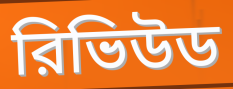
রিভিউড